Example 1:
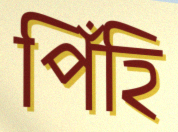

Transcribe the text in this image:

পিঁহি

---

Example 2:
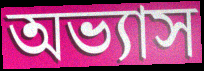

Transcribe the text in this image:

অভ্যাস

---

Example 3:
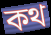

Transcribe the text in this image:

কথ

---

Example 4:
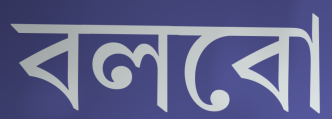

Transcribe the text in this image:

বলবো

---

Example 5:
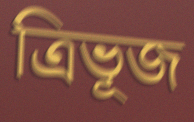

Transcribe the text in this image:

ত্ৰিভূজ